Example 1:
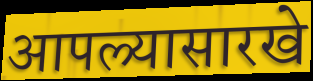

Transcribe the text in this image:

आपल्यासारखे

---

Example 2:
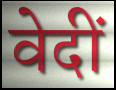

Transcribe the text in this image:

वेदीं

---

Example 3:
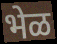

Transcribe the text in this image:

भेळ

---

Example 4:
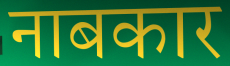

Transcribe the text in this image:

नाबकार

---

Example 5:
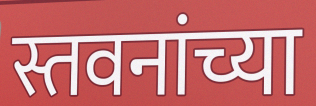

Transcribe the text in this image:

स्तवनांच्या